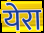
येरा